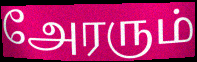
அேரரும்